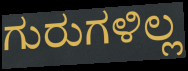
ಗುರುಗಳಿಲ್ಲ